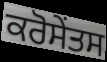
ਕਰੋਸੇਂਤਸ